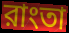
রাংতা